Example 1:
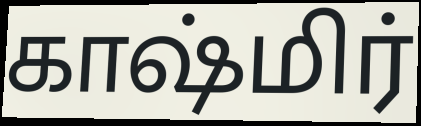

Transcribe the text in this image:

காஷ்மிர்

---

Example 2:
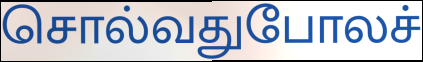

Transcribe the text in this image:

சொல்வதுபோலச்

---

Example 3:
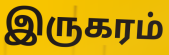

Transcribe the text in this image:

இருகரம்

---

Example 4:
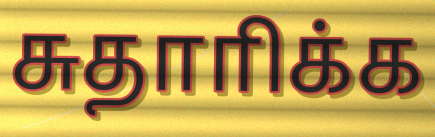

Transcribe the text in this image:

சுதாரிக்க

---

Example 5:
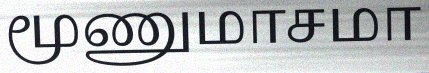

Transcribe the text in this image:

மூணுமாசமா